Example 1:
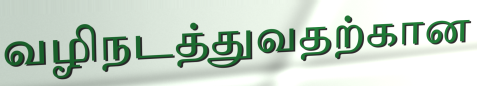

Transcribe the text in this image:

வழிநடத்துவதற்கான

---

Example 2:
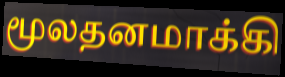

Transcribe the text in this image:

மூலதனமாக்கி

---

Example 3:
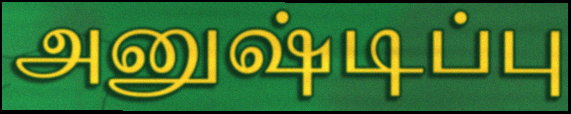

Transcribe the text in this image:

அனுஷ்டிப்பு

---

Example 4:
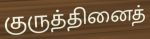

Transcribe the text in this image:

குருத்தினைத்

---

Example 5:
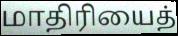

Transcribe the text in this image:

மாதிரியைத்